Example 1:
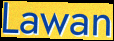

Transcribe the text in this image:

Lawan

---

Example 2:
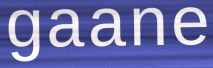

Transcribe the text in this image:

gaane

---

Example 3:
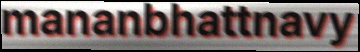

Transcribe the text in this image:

mananbhattnavy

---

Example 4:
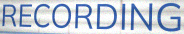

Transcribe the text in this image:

RECORDING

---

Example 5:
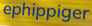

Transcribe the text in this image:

ephippiger